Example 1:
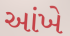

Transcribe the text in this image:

આંખે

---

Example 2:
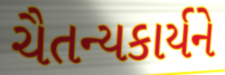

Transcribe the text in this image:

ચૈતન્યકાર્યને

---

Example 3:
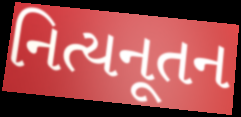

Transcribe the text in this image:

નિત્યનૂતન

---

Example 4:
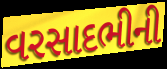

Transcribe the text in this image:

વરસાદભીની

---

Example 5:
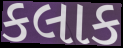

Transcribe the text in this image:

કલાક